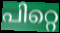
പിറ്റെ